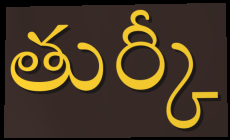
తుర్కీ